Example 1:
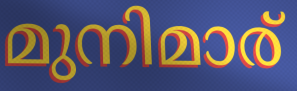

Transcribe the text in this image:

മുനിമാര്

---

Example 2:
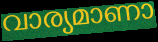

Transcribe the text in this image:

വാര്യമാണാ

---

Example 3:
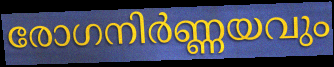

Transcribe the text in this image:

രോഗനിർണ്ണയവും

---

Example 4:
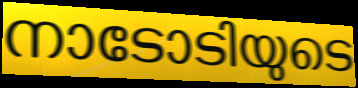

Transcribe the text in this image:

നാടോടിയുടെ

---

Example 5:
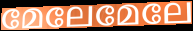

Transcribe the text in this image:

മേലേമേലേ